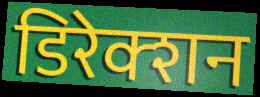
डिरेक्शन